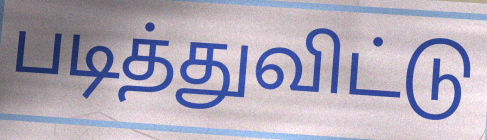
படித்துவிட்டு